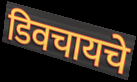
डिवचायचे